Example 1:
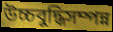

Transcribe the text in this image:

উচ্চবুদ্ধিসম্পন্ন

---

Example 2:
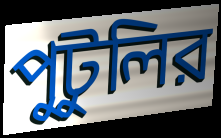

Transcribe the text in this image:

পুটুলির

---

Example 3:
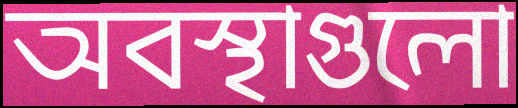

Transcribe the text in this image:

অবস্থাগুলো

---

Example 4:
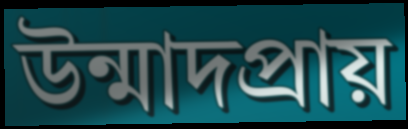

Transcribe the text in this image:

উন্মাদপ্রায়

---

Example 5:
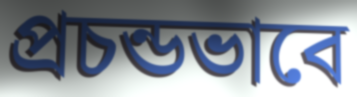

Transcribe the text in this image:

প্রচন্ডভাবে